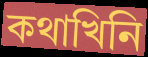
কথাখিনি